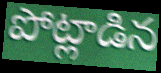
పోట్లాడిన